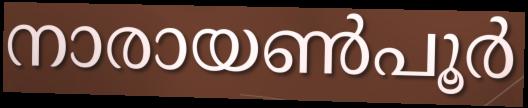
നാരായൺപൂർ